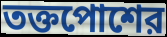
তক্তপোশের